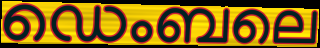
ഡെംബലെ